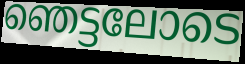
ഞെട്ടലോടെ